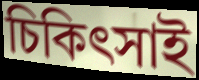
চিকিৎসাই